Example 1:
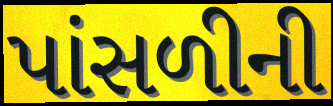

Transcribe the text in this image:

પાંસળીની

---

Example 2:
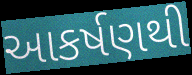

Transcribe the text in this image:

આકર્ષણથી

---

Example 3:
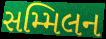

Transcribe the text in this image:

સમ્મિલન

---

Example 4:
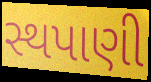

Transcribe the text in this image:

સ્થપાણી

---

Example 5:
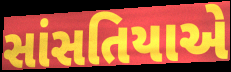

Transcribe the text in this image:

સાંસતિયાએ